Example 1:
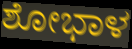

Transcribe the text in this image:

ಶೋಭಾಳ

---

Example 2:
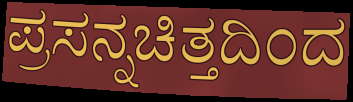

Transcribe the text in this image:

ಪ್ರಸನ್ನಚಿತ್ತದಿಂದ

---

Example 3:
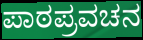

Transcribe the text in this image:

ಪಾಠಪ್ರವಚನ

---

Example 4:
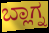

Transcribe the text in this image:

ಬ್ಲಾಗ್ನ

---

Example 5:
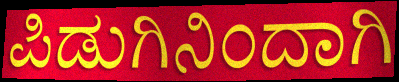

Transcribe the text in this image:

ಪಿಡುಗಿನಿಂದಾಗಿ